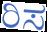
ರಿಸ